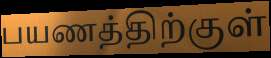
பயணத்திற்குள்